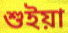
শুইয়া